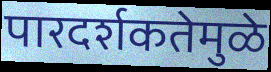
पारदर्शकतेमुळे